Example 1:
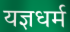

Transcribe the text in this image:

यज्ञधर्म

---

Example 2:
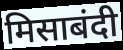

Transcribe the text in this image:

मिसाबंदी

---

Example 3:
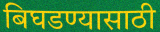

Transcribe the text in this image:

बिघडण्यासाठी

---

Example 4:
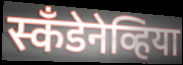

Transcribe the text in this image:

स्कॅंडेनेव्हिया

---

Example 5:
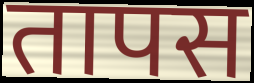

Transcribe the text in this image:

तापस